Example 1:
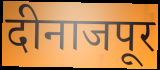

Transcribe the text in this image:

दीनाजपूर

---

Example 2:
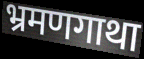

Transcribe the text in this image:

भ्रमणगाथा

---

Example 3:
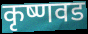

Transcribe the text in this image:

कृष्णवड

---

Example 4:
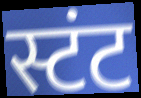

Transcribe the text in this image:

स्टंट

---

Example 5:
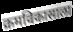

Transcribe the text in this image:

क्रमविकासाला